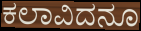
ಕಲಾವಿದನೂ